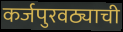
कर्जपुरवठ्याची